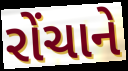
રોંચાને